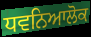
ਧਵਨਿਆਲੋਕ